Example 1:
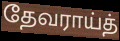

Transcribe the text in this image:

தேவராய்த்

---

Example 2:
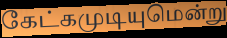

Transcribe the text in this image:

கேட்கமுடியுமென்று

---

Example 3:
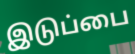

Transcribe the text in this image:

இடுப்பை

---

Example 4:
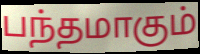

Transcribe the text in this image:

பந்தமாகும்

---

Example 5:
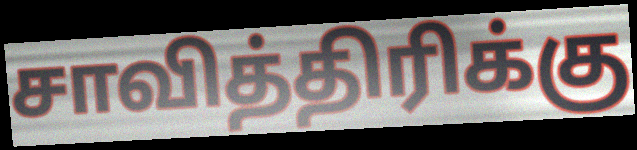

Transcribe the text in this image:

சாவித்திரிக்கு